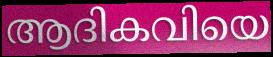
ആദികവിയെ